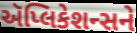
ઍપ્લિકેશન્સને